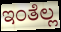
ಇಂತೆಲ್ಲ